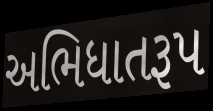
અભિધાતરૂપ